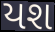
યશ